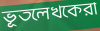
ভূতলেখকেরা